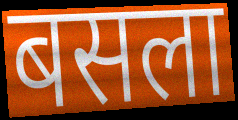
बसला